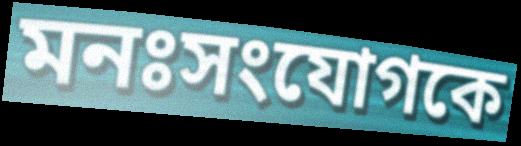
মনঃসংযোগকে